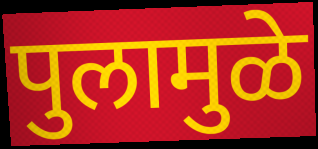
पुलामुळे